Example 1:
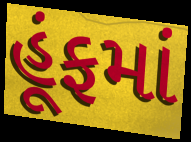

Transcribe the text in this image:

હૂંફમાં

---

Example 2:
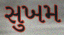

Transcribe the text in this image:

સુખમ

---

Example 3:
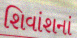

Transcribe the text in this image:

શિવાંશનાં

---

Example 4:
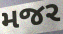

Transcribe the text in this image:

મજર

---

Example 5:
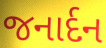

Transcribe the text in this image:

જનાર્દન